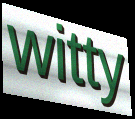
witty